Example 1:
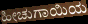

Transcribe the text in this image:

ಹೀಚುಗಾಯಿಯ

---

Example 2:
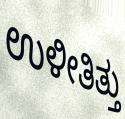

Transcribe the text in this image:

ಉಳೀತಿತ್ತು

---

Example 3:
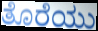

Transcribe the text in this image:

ತೊರೆಯು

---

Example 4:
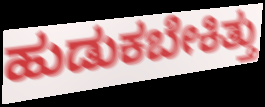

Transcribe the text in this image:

ಹುಡುಕಬೇಕಿತ್ತು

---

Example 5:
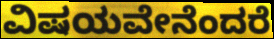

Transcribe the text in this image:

ವಿಷಯವೇನೆಂದರೆ